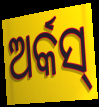
ଅର୍କସ୍